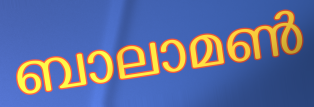
ബാലാമൺ